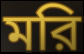
মরি